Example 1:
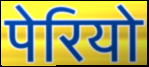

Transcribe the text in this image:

पेरियो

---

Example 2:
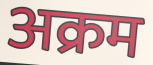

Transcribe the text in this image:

अक्रम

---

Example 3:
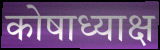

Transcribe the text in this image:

कोषाध्याक्ष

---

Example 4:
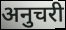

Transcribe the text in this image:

अनुचरी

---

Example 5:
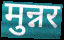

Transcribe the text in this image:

मुन्नर